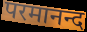
परमानन्द